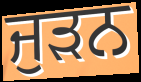
ਜੁਡ਼ਨ